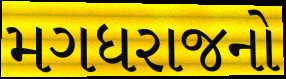
મગધરાજનો